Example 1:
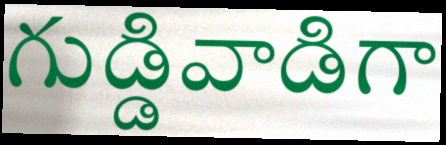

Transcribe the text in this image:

గుడ్డివాడిగా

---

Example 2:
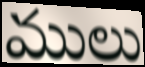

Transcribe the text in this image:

ములు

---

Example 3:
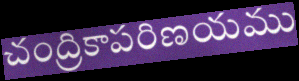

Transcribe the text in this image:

చంద్రికాపరిణయము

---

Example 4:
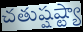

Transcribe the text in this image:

చతుష్షష్ట్యా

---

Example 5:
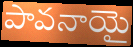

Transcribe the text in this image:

పావనాయై